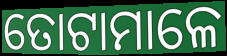
ତୋଟାମାଳେ